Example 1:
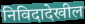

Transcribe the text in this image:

निविदादेखील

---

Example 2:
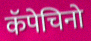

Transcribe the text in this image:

कॅपेचिनो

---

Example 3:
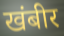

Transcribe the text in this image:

खंबीर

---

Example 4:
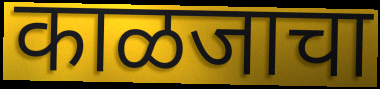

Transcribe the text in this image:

काळजाचा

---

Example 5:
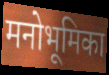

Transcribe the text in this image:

मनोभूमिका